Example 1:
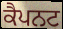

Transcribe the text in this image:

ਕੈਪਨਟ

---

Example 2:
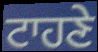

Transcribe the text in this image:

ਟਾਹਣੇ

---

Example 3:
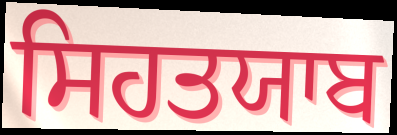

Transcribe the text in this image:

ਸਿਹਤਯਾਬ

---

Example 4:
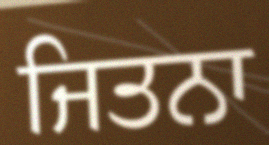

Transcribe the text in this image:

ਜਿਤਨਾ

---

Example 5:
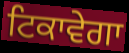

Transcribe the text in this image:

ਟਿਕਾਵੇਗਾ